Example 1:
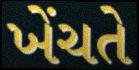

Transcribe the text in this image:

ખેંચતે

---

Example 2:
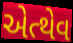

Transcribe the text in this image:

એત્થેવ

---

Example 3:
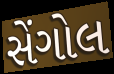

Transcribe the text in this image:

સેંગોલ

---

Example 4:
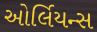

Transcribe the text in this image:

ઓર્લિયન્સ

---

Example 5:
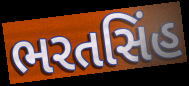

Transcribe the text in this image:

ભરતસિંહ